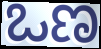
ಒಣ